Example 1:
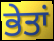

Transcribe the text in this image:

ਭੇਤਾਂ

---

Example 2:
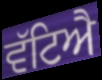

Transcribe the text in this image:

ਵੱਟਿਐ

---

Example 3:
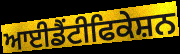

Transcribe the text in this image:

ਆਈਡੈਂਟੀਫਿਕੇਸ਼ਨ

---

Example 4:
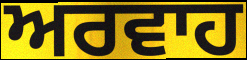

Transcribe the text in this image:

ਅਰਵਾਹ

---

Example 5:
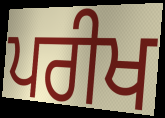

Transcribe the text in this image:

ਪਰੀਖ